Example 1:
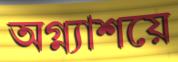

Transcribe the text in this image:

অগ্ন্যাশয়ে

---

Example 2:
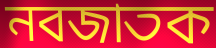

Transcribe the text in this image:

নবজাতক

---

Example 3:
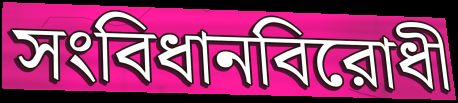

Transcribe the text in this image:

সংবিধানবিরোধী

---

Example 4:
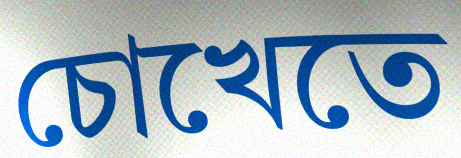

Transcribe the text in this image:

চোখেতে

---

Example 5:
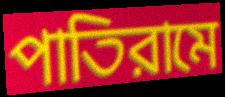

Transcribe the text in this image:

পাতিরামে